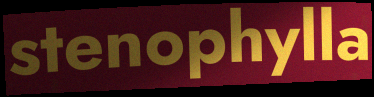
stenophylla